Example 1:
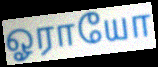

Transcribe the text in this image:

ஓராயோ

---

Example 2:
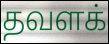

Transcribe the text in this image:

தவளக்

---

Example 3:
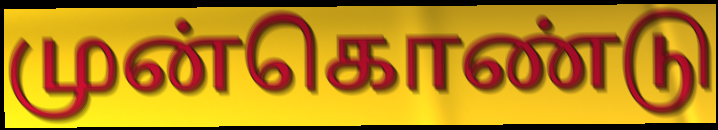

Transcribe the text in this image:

முன்கொண்டு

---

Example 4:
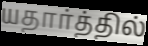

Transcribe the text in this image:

யதார்த்தில்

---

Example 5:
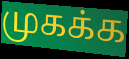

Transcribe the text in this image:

முகக்க